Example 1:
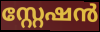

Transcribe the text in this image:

സ്റ്റേഷൻ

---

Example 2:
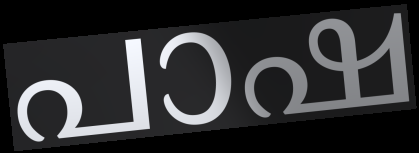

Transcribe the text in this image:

പാഷ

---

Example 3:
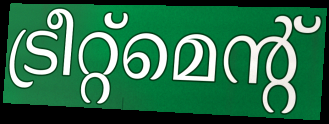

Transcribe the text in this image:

ട്രീറ്റ്മെന്റ്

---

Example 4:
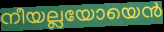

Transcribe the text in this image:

നീയല്ലയോയെൻ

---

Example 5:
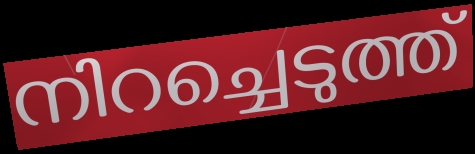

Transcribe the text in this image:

നിറച്ചെടുത്ത്